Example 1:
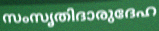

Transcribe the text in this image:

സംസൃതിദാരുദേഹ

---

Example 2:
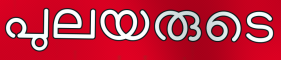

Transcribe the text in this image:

പുലയരുടെ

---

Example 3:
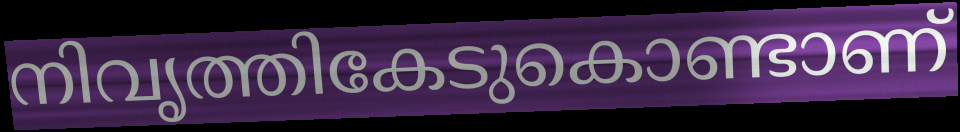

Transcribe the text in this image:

നിവൃത്തികേടുകൊണ്ടാണ്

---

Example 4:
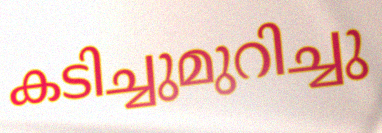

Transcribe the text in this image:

കടിച്ചുമുറിച്ചു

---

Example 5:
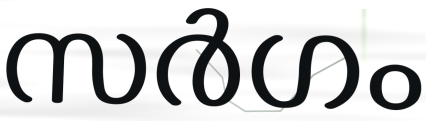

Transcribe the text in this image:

സർഗം